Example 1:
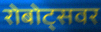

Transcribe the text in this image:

रोबोट्सवर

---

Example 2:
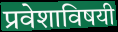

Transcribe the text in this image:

प्रवेशाविषयी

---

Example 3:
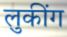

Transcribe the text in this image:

लुकींग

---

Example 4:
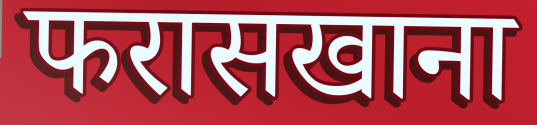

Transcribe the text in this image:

फरासखाना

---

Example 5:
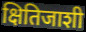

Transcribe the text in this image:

क्षितिजाशी